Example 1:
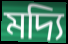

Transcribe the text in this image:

মদ্যি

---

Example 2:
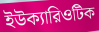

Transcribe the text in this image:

ইউক্যারিওটিক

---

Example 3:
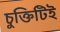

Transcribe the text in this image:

চুক্তিটিই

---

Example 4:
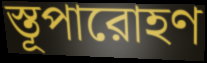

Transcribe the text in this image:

স্তূপারোহণ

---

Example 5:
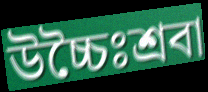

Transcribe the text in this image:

উচ্চৈঃশ্রবা